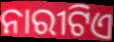
ନାରୀଟିଏ